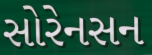
સોરેનસન